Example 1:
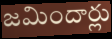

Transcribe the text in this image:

జమిందార్లు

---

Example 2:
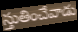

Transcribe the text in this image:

స్తుతించేవాడు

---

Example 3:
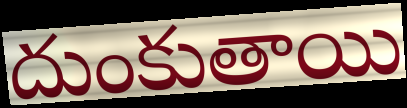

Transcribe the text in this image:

దుంకుతాయి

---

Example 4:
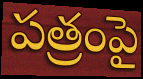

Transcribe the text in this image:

పత్రంపై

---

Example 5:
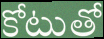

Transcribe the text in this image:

కోటుతో